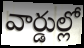
వార్డుల్లో